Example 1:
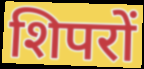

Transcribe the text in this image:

शिपरों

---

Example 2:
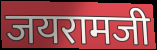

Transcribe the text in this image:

जयरामजी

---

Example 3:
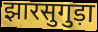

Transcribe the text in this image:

झारसुगुड़ा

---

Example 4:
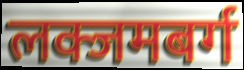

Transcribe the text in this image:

लक्जमबर्ग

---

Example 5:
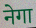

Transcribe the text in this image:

नेगा